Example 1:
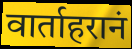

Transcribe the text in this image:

वार्ताहरानं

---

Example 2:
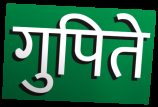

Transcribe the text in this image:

गुपिते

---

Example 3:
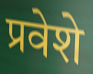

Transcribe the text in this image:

प्रवेशे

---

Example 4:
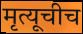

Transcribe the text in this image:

मृत्यूचीच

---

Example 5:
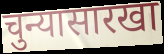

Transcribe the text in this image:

चुन्यासारखा